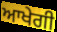
ਆਖੇਗੀ